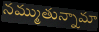
నమ్ముతున్నామా